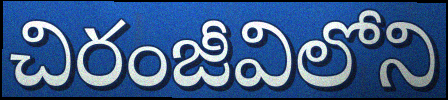
చిరంజీవిలోని